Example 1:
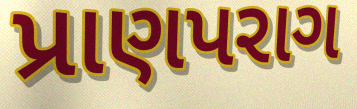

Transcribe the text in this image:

પ્રાણપરાગ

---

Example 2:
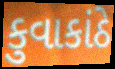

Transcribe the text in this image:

કુવાકાંઠે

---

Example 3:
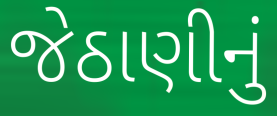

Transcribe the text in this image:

જેઠાણીનું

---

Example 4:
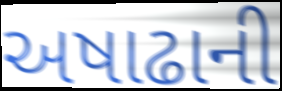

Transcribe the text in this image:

અષાઢાની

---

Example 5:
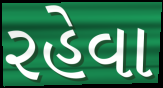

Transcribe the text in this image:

રહેવા